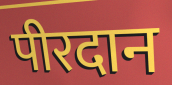
पीरदान